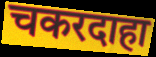
चकरदाहा